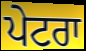
ਪੇਟਰਾ